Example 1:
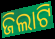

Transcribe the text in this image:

ଜିଲାଟି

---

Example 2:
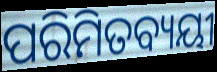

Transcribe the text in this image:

ପରିମିତବ୍ୟୟୀ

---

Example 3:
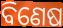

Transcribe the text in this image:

ବିଣେଷ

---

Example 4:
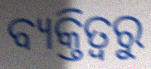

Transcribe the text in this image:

ବ୍ୟକ୍ତିତ୍ୱରୁ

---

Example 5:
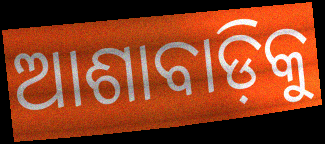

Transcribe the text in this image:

ଆଶାବାଡ଼ିକୁ